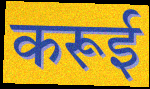
करूई